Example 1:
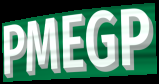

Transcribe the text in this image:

PMEGP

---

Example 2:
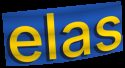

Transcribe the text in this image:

elas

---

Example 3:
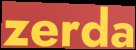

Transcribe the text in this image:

zerda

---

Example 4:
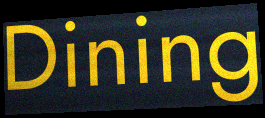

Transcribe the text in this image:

Dining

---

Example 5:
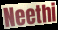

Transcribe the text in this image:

Neethi